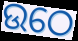
ଉଠେ